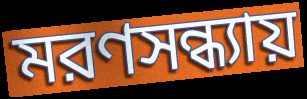
মরণসন্ধ্যায়